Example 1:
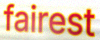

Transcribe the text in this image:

fairest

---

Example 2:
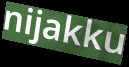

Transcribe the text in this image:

nijakku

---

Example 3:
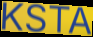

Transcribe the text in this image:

KSTA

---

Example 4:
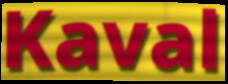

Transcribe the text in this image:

Kaval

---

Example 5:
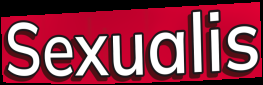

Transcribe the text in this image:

Sexualis